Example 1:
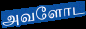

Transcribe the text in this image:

அவளோட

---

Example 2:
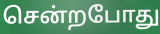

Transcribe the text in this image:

சென்றபோது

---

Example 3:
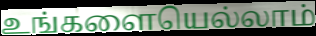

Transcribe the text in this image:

உங்களையெல்லாம்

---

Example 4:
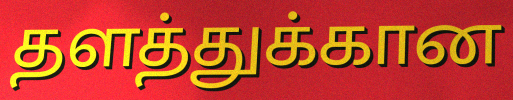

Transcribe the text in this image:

தளத்துக்கான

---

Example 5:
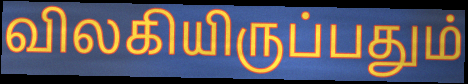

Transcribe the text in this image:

விலகியிருப்பதும்